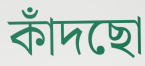
কাঁদছো